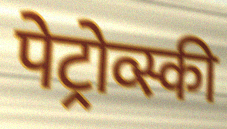
पेट्रोव्स्की